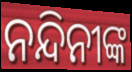
ନନ୍ଦିନୀଙ୍କ